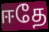
ஈதே